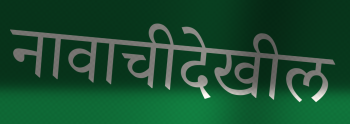
नावाचीदेखील